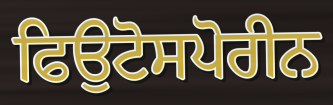
ਫਿਉਟੋਸਪੋਰੀਨ